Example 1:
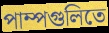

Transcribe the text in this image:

পাম্পগুলিতে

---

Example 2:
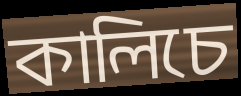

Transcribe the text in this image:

কালিচে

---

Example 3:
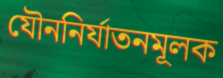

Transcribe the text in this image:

যৌননির্যাতনমূলক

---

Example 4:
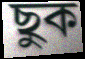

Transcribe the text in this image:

ছুক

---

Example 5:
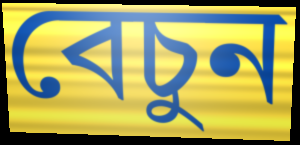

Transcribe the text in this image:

বেচুন